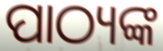
ପାଠ୍ୟଙ୍କ